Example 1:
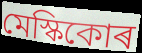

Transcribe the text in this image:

মেস্কিকোৰ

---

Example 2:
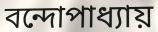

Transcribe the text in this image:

বন্দোপাধ্যায়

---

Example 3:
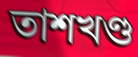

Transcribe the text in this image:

তাশখণ্ড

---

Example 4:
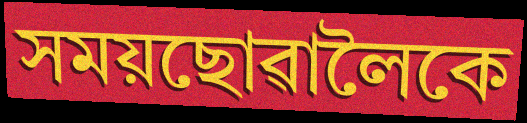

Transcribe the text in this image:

সময়ছোৱালৈকে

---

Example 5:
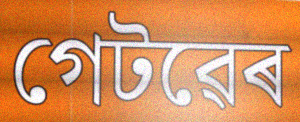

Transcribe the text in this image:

গেটৱেৰ